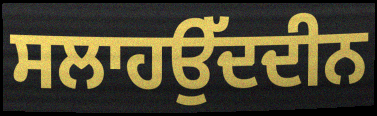
ਸਲਾਹਉੱਦਦੀਨ